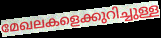
മേഖലകളെക്കുറിച്ചുള്ള